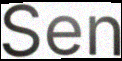
Sen